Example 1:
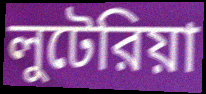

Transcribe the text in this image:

লুটেরিয়া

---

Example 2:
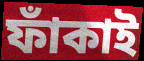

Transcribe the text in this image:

ফাঁকাই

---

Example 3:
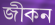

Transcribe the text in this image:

জীকন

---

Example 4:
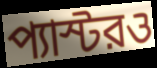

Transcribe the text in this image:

প্যাস্টরও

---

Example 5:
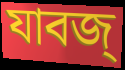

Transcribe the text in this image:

যাবজ্